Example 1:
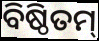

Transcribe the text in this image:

ବିଷ୍ଠିତମ୍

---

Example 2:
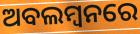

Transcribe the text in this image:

ଅବଲମ୍ବନରେ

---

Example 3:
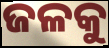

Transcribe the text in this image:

ଜଳକୁ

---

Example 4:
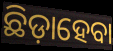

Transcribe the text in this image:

ଛିଡ଼ାହେବା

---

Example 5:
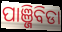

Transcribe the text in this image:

ପାଞ୍ଜିବିଡା